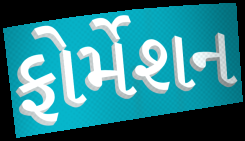
ફોર્મેશન